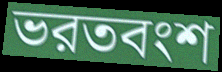
ভরতবংশ